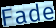
Fade